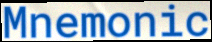
Mnemonic